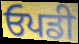
ਓਪਡੀ